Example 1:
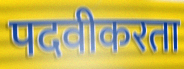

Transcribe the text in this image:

पदवीकरता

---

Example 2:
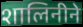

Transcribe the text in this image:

शालिनीने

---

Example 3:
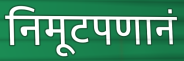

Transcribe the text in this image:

निमूटपणानं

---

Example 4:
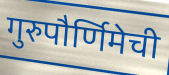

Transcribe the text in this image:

गुरुपौर्णिमेची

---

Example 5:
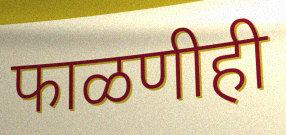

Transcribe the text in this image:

फाळणीही